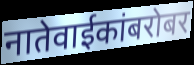
नातेवाईकांबरोबर